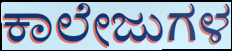
ಕಾಲೇಜುಗಳ